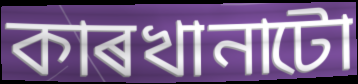
কাৰখানাটো